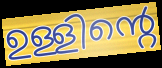
ഉള്ളിന്റെ